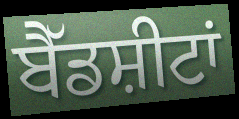
ਬੈੱਡਸ਼ੀਟਾਂ